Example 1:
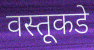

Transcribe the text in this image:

वस्तूकडे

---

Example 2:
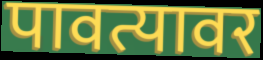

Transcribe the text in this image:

पावत्यावर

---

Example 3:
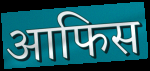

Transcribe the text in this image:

आफिस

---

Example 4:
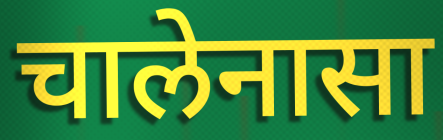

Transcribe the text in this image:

चालेनासा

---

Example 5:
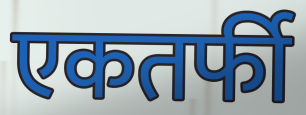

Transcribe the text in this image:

एकतर्फी